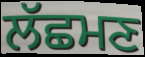
ਲੱਛਮਣ